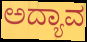
ಅದ್ಯಾವ